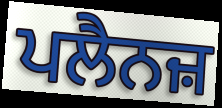
ਪਲੈਨਜ਼